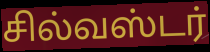
சில்வஸ்டர்